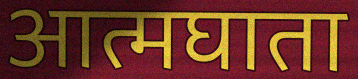
आत्मघाता